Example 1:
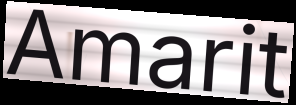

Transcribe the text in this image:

Amarit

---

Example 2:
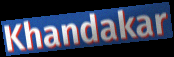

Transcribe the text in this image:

Khandakar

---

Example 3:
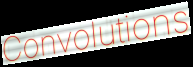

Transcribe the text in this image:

Convolutions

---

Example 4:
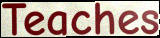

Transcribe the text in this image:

Teaches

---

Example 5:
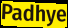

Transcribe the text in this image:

Padhye